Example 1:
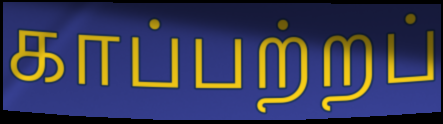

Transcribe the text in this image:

காப்பற்றப்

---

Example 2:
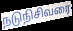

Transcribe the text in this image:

நடுநிசிவரை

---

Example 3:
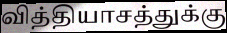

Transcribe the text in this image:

வித்தியாசத்துக்கு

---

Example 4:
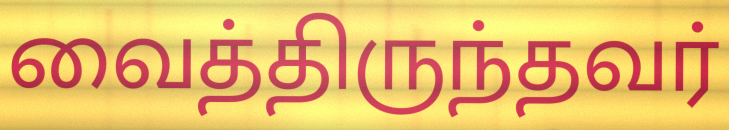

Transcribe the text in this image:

வைத்திருந்தவர்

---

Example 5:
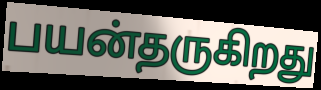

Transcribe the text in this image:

பயன்தருகிறது